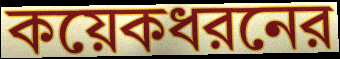
কয়েকধরনের